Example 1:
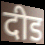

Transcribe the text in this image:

दीड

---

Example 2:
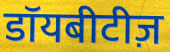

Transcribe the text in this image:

डॉयबीटीज़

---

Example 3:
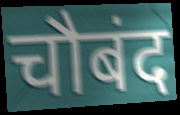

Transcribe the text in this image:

चौबंद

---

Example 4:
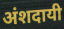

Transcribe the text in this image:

अंशदायी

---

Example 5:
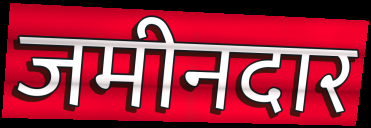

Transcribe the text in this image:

जमीनदार